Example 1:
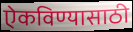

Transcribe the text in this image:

ऐकविण्यासाठी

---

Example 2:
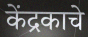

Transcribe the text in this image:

केंद्रकाचे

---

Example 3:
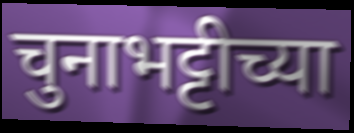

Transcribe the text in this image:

चुनाभट्टीच्या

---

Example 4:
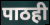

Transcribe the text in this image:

पाठही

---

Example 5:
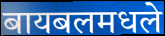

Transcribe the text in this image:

बायबलमधले